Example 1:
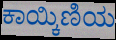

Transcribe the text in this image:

ಕಾಯ್ಕಿಣಿಯ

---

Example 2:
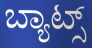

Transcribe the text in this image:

ಬ್ಯಾಟ್ಸ್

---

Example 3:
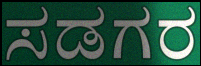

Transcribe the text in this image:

ಸಡಗರ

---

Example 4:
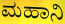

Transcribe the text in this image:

ಮಹಾನಿ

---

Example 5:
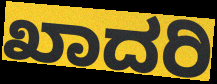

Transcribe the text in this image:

ಖಾದರಿ